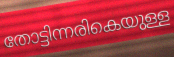
തോട്ടിന്നരികെയുള്ള